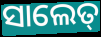
ସାଲେତ୍